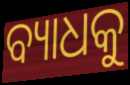
ବ୍ୟାଧକୁ